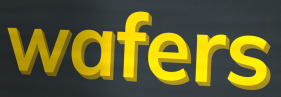
wafers